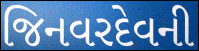
જિનવરદેવની